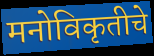
मनोविकृतीचे